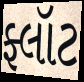
ફ્લૉટ